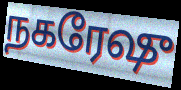
நகரேஷு